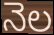
నెల